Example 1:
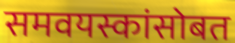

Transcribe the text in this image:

समवयस्कांसोबत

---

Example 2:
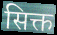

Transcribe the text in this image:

सिक्त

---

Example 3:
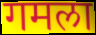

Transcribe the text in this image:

गमला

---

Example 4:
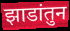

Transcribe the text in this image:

झाडांतुन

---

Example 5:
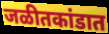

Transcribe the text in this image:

जळीतकांडात